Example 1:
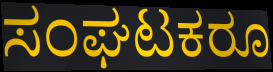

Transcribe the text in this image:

ಸಂಘಟಕರೂ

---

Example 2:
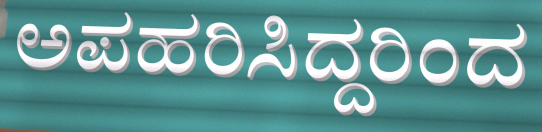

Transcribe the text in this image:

ಅಪಹರಿಸಿದ್ದರಿಂದ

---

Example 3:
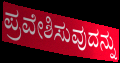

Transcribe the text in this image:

ಪ್ರವೇಶಿಸುವುದನ್ನು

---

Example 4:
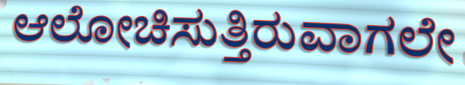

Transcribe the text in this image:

ಆಲೋಚಿಸುತ್ತಿರುವಾಗಲೇ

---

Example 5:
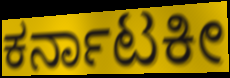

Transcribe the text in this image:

ಕರ್ನಾಟಕೀ